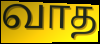
வாத